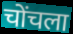
चोंचला